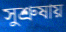
সুশ্রুষায়